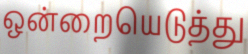
ஒன்றையெடுத்து